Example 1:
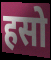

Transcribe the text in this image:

हसो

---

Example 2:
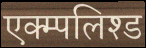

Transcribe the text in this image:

एक्म्पलिश्ड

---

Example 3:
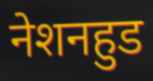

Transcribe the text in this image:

नेशनहुड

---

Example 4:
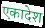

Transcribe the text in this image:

एकादेश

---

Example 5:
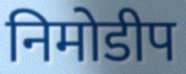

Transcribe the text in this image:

निमोडीप